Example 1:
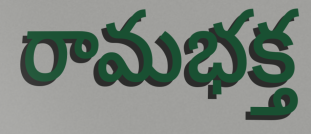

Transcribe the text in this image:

రామభక్త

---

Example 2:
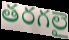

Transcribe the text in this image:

తరగలై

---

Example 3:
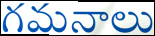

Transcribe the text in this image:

గమనాలు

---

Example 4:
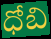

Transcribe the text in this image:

ధోబి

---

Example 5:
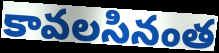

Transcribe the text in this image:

కావలసినంత